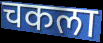
चकला